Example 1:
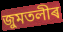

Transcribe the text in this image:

জুমতলীৰ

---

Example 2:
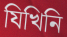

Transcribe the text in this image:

যিখিনি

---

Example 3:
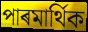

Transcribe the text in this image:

পাৰমাৰ্থিক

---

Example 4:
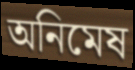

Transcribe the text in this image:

অনিমেষ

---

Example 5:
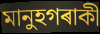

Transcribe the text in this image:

মানুহগৰাকী